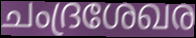
ചംദ്രശേഖര